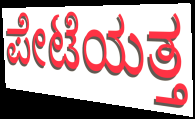
ಪೇಟೆಯತ್ತ